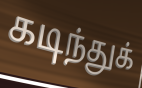
கடிந்துக்